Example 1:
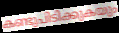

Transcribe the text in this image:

കണ്ടുപിടിക്കുകയും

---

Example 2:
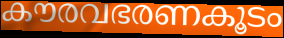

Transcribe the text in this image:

കൗരവഭരണകൂടം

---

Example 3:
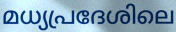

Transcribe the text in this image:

മധ്യപ്രദേശിലെ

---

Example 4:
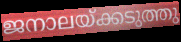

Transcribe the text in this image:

ജനാലയ്ക്കടുത്തു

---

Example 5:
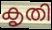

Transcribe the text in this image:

കൃതി